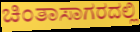
ಚಿಂತಾಸಾಗರದಲ್ಲಿ